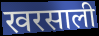
खरसाली